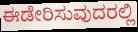
ಈಡೇರಿಸುವುದರಲ್ಲಿ